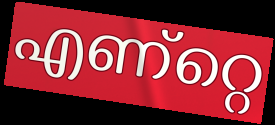
എണ്റ്റെ